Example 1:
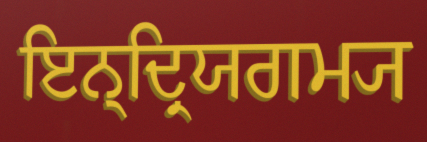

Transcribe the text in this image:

ਇਨ੍ਦ੍ਰਿਯਗਮ੍ਯ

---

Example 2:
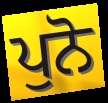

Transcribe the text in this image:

ਪੁਨੋ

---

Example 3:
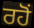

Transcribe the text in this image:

ਰਹੋਂ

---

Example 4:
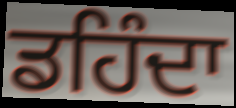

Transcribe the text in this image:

ਡਹਿੰਦਾ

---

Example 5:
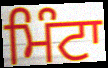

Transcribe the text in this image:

ਮਿੰਟਾ